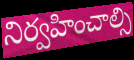
నిర్వహించాల్సి